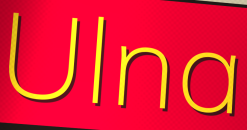
Ulna